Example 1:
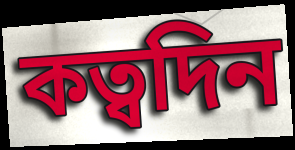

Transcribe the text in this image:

কত্বদিন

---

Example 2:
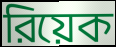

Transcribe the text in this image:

রিয়েক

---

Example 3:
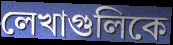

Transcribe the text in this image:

লেখাগুলিকে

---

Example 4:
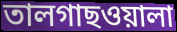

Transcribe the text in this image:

তালগাছওয়ালা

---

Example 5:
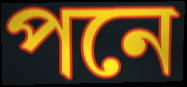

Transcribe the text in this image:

পনে